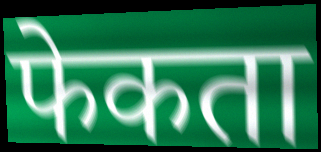
फेकता